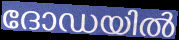
ദോഡയിൽ